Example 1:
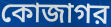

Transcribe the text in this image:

কোজাগর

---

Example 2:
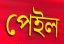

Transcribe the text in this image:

পেইল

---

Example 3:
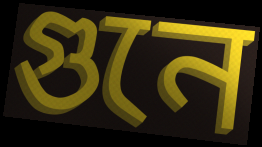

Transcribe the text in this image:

গুনে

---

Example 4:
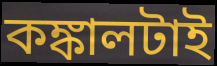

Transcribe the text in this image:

কঙ্কালটাই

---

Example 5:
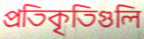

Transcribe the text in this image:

প্রতিকৃতিগুলি